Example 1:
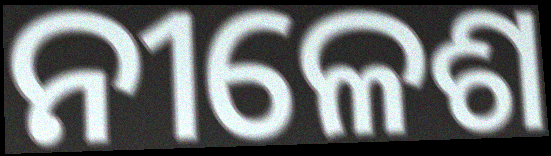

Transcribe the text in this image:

ନୀଳେଶ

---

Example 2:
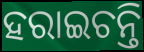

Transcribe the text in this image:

ହରାଇଚନ୍ତି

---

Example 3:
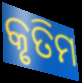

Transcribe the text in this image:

କୃତିମ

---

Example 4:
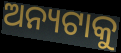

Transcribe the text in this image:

ଅନ୍ୟଟାକୁ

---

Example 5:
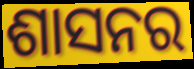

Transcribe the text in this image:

ଶାସନର